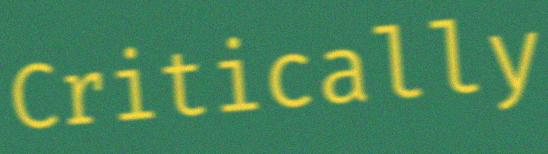
Critically